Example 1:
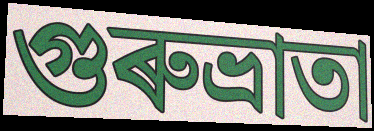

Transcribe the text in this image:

গুৰুভ্ৰাতা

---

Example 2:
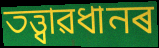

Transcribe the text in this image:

তত্ত্বাৱধানৰ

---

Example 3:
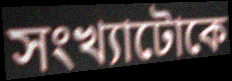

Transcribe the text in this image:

সংখ্যাটোকে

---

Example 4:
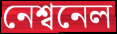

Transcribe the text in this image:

নেশ্বনেল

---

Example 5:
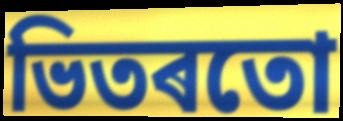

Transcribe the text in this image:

ভিতৰতো